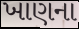
ખાણના